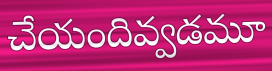
చేయందివ్వడమూ